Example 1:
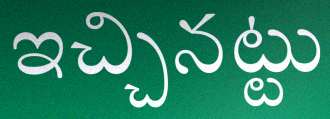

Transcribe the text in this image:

ఇచ్చినట్టు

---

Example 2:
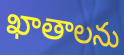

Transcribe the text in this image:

ఖాతాలను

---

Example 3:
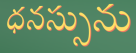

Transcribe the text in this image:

ధనస్సును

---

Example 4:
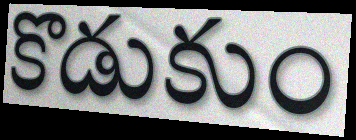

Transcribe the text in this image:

కొడుకుం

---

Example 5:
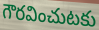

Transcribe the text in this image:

గౌరవించుటకు